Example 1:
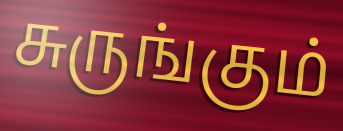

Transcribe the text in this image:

சுருங்கும்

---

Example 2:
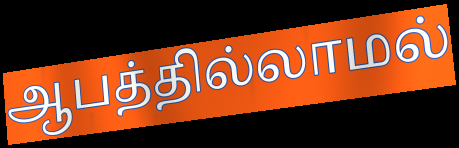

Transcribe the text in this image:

ஆபத்தில்லாமல்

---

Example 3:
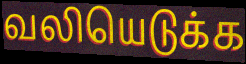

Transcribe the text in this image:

வலியெடுக்க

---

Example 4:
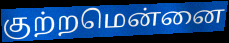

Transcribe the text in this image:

குற்றமென்னை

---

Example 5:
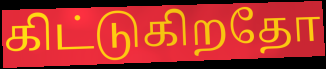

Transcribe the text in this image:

கிட்டுகிறதோ